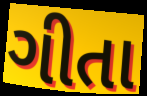
ગીતા